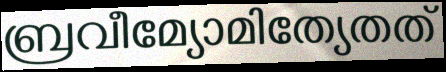
ബ്രവീമ്യോമിത്യേതത്